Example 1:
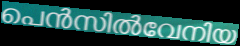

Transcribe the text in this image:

പെൻസിൽവേനിയ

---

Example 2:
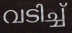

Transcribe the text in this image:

വടിച്ച്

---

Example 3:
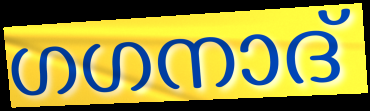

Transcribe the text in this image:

ഗഗനാദ്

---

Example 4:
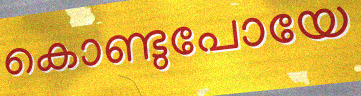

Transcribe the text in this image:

കൊണ്ടുപോയേ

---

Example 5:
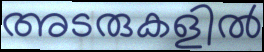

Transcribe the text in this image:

അടരുകളിൽ